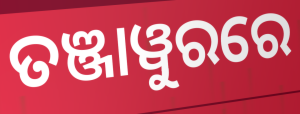
ତଞ୍ଜାୱୁରରେ